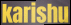
karishu